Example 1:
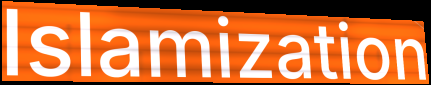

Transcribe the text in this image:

Islamization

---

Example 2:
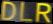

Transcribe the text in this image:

DLR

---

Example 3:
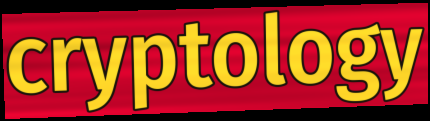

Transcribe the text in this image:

cryptology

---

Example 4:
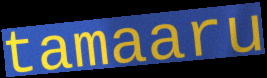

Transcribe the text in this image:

tamaaru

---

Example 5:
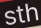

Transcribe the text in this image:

sth